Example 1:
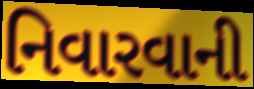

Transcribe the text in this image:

નિવારવાની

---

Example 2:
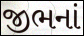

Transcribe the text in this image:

જીભનાં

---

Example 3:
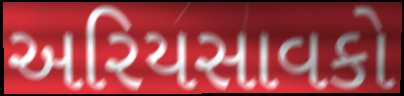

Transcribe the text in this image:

અરિયસાવકો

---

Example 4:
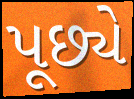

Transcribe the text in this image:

પૂછ્યે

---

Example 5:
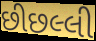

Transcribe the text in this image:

છીછલ્લી